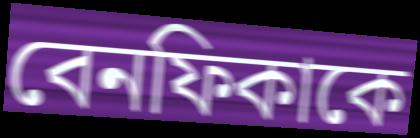
বেনফিকাকে